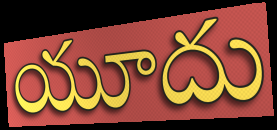
యూదు